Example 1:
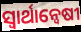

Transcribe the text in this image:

ସ୍ବାର୍ଥାନ୍ବେଷୀ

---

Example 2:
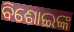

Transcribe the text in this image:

ବିଶୋଇଙ୍କ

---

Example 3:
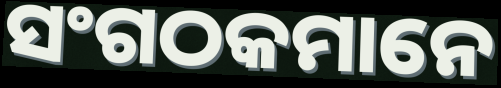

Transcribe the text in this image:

ସଂଗଠକମାନେ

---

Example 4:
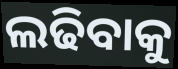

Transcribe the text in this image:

ଲଢିବାକୁ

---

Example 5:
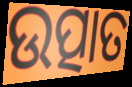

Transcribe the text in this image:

ଉତ୍ପାତ